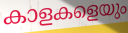
കാളകളെയും